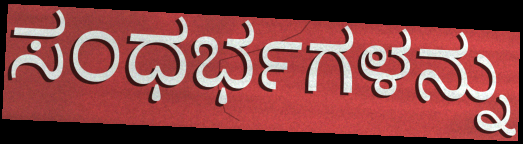
ಸಂಧರ್ಭಗಳನ್ನು